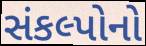
સંકલ્પોનો